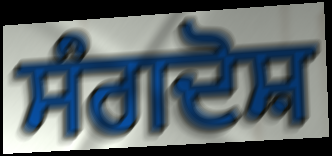
ਸੰਗਦੋਸ਼